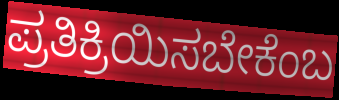
ಪ್ರತಿಕ್ರಿಯಿಸಬೇಕೆಂಬ